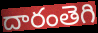
దారంతెగి